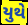
યુથે